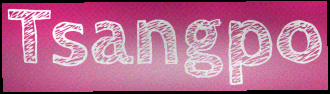
Tsangpo